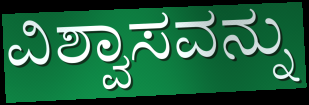
ವಿಶ್ವಾಸವನ್ನು